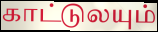
காட்டுலயும்